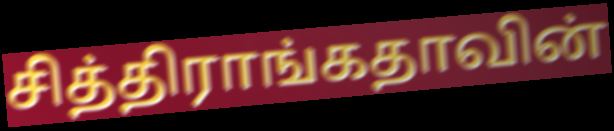
சித்திராங்கதாவின்